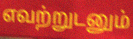
எவற்றுடனும்